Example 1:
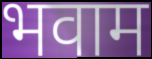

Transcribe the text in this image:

भवाम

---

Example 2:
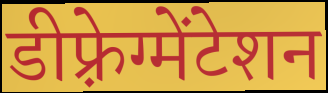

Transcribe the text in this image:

डीफ़्रेग्मेंटेशन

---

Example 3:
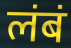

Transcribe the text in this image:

लंबं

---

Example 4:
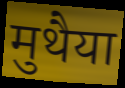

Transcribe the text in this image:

मुथैया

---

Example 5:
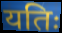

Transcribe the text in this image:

यतिः